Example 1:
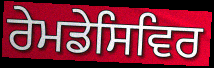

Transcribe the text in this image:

ਰੇਮਡੇਸਿਵਿਰ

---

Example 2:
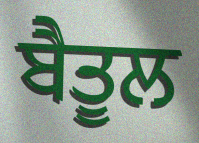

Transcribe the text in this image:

ਬੈਤੂਲ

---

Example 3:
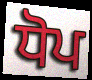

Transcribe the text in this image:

ਧੋਪ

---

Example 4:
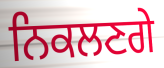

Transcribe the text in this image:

ਨਿਕਲਣਗੇ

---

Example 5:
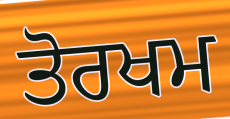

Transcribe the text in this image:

ਤੋਰਖਮ